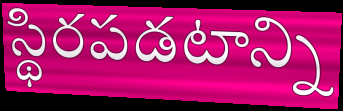
స్థిరపడటాన్ని